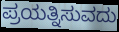
ಪ್ರಯತ್ನಿಸುವದು